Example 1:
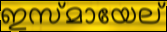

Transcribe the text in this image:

ഇസ്മായേല്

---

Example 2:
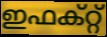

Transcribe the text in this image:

ഇഫക്റ്റ്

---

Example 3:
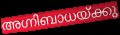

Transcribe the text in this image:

അഗ്നിബാധയ്ക്കു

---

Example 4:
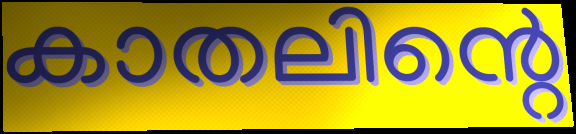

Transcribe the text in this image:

കാതലിന്റെ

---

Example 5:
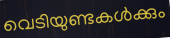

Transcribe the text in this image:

വെടിയുണ്ടകൾക്കും